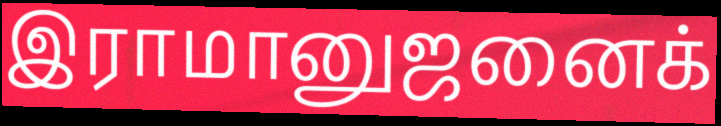
இராமானுஜனைக்